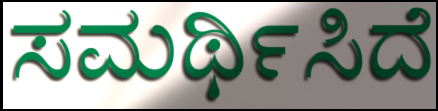
ಸಮರ್ಥಿಸಿದೆ